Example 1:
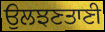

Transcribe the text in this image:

ਉਲਝਣਤਾਣੀ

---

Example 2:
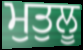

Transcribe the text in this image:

ਮੁਤੁਲੂ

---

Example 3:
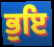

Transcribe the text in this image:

ਭੁਇ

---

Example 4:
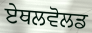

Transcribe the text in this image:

ਏਥਲਵੋਲਡ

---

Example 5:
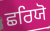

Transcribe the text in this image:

ਛਰਿਯੋ